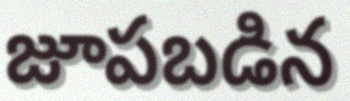
జూపబడిన